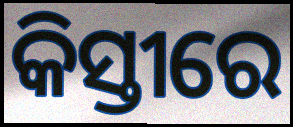
କିସ୍ତୀରେ